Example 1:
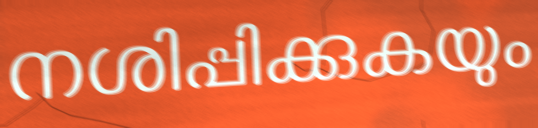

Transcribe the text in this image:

നശിപ്പിക്കുകയും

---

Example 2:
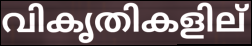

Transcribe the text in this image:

വികൃതികളില്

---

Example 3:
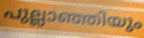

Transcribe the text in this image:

പുല്ലാഞ്ഞിയും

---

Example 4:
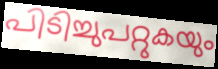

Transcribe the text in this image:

പിടിച്ചുപറ്റുകയും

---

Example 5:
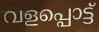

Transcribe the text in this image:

വളപ്പൊട്ട്